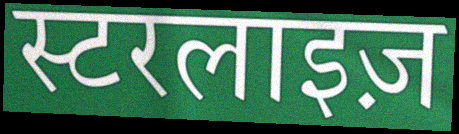
स्टरलाइज़